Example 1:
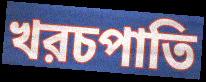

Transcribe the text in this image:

খরচপাতি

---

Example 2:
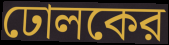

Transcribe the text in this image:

ঢোলকের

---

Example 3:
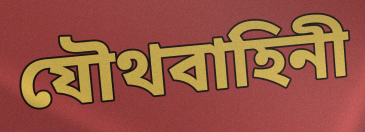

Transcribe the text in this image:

যৌথবাহিনী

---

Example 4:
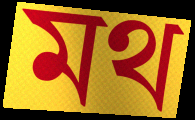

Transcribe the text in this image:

মথ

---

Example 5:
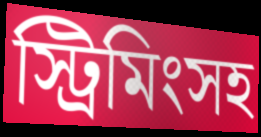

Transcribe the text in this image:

স্ট্রিমিংসহ